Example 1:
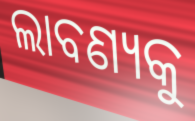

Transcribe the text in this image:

ଲାବଣ୍ୟକୁ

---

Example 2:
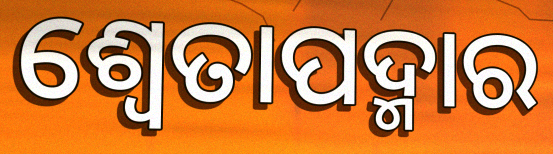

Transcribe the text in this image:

ଶ୍ଵେତାପଦ୍ମାର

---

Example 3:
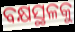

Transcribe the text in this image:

ବକ୍ଷସ୍ଥଳକୁ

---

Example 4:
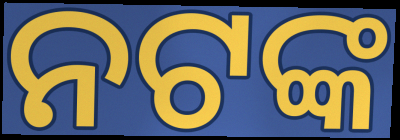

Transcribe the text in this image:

ନଟଙ୍କ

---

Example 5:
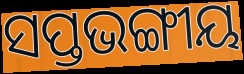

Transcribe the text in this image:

ସପ୍ତଭଙ୍ଗୀୟ